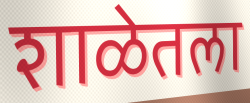
शाळेतला